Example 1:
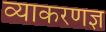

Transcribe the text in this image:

व्याकरणज्ञ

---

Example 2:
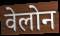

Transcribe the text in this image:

वेलोन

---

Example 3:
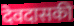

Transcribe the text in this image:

देवदासकी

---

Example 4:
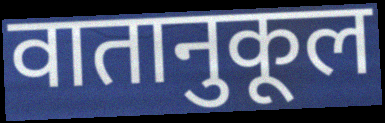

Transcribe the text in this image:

वातानुकूल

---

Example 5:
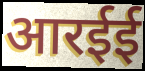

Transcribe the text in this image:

आरईई